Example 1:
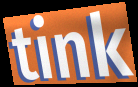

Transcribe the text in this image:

tink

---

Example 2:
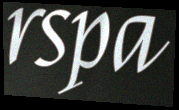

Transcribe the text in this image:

rspa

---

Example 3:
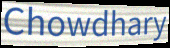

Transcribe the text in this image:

Chowdhary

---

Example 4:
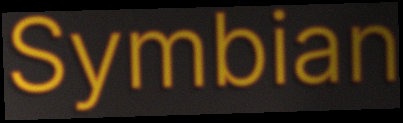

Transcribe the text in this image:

Symbian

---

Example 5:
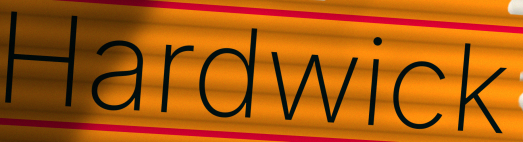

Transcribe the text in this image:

Hardwick